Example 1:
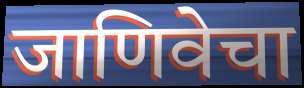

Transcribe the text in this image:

जाणिवेचा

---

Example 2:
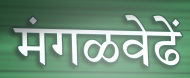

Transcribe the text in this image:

मंगळवेढें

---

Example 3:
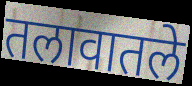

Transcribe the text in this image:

तलावातले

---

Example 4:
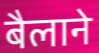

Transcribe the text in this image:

बैलाने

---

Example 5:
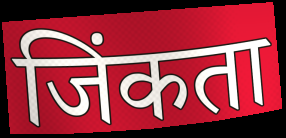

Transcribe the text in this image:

जिंकता